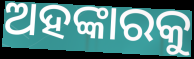
ଅହଙ୍କାରକୁ